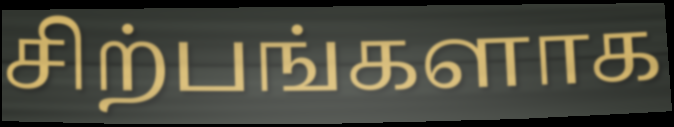
சிற்பங்களாக